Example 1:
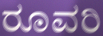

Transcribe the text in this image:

ರೂವರಿ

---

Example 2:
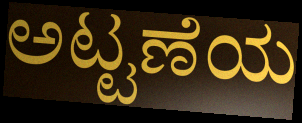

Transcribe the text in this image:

ಅಟ್ಟಣೆಯ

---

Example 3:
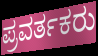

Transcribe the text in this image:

ಪ್ರವರ್ತಕರು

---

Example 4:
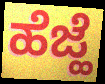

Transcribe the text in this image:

ಹೆಜ್ಹೆ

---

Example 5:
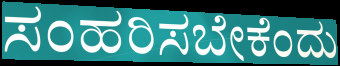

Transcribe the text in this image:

ಸಂಹರಿಸಬೇಕೆಂದು